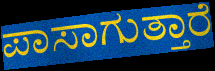
ಪಾಸಾಗುತ್ತಾರೆ